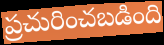
ప్రచురించబడింది